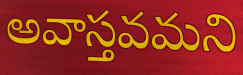
అవాస్తవమని